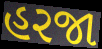
હરજા